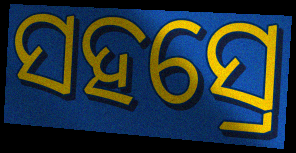
ସହସ୍ରେ